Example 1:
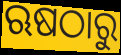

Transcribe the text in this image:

ଋଷଠାରୁ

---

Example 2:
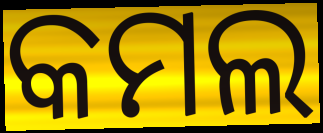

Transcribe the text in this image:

କମଲ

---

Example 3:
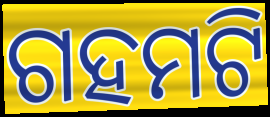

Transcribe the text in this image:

ଗହମଟି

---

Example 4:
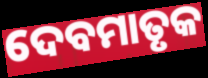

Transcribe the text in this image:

ଦେବମାତୃକ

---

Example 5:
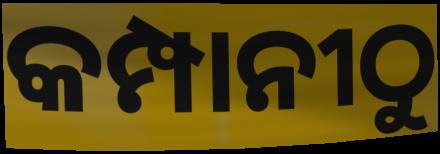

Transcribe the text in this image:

କମ୍ପାନୀଠୁ